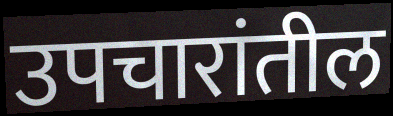
उपचारांतील